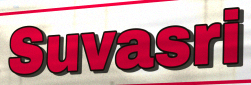
Suvasri